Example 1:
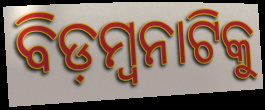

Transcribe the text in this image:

ବିଡ଼ମ୍ବନାଟିକୁ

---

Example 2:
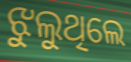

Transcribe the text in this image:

ଝୁଲୁଥିଲେ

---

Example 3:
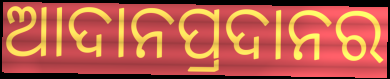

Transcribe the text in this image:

ଆଦାନପ୍ରଦାନର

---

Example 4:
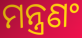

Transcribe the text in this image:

ମନ୍ତ୍ରଣଂ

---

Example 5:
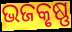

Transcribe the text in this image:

ଭଜକୃଷ୍ଣ